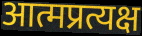
आत्मप्रत्यक्ष